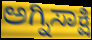
ಅಗ್ನಿಸಾಕ್ಷಿ